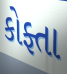
કોફ્તા